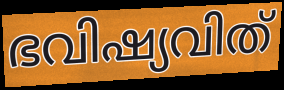
ഭവിഷ്യവിത്